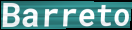
Barreto